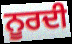
ਨੂਰਦੀ